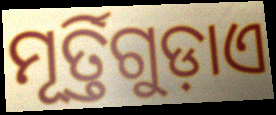
ମୂର୍ତ୍ତିଗୁଡ଼ାଏ